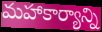
మహాకార్యాన్ని